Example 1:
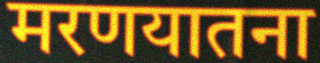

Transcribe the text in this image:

मरणयातना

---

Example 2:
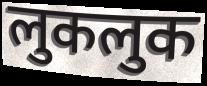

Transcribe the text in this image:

लुकलुक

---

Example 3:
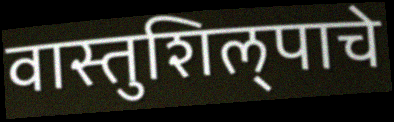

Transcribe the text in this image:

वास्तुशिल्पाचे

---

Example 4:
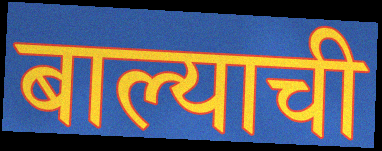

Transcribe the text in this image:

बाल्याची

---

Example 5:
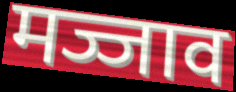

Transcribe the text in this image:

मज्जाव